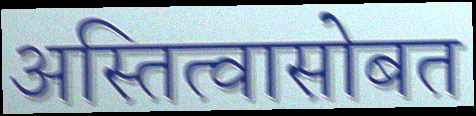
अस्तित्वासोबत